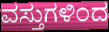
ವಸ್ತುಗಳಿಂದ